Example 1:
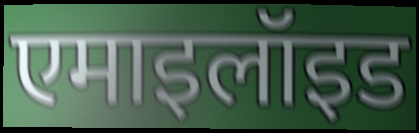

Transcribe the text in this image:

एमाइलॉइड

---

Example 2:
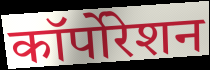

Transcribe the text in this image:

कॉर्पोरेशन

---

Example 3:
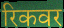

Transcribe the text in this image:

रिकवर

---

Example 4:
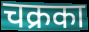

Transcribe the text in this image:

चक्रका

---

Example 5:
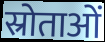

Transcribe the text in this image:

स्रोताओं